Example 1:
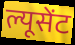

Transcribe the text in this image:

ल्यूसेंट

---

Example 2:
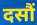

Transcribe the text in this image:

दसौं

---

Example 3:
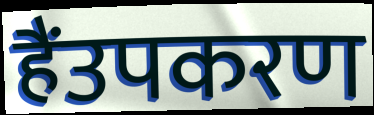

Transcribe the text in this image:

हैंउपकरण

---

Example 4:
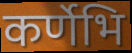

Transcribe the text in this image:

कर्णेभि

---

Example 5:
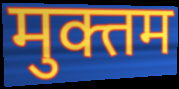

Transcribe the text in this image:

मुक्तम